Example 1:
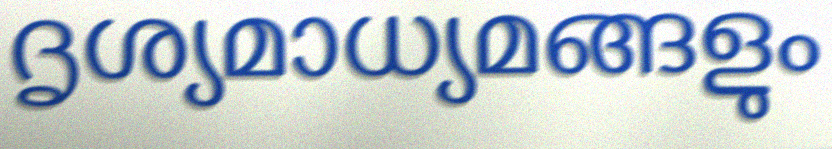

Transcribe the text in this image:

ദൃശ്യമാധ്യമങ്ങളും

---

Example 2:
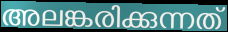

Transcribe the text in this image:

അലങ്കരിക്കുന്നത്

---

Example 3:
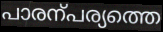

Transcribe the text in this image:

പാരന്പര്യത്തെ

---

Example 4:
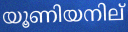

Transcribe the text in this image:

യൂണിയനില്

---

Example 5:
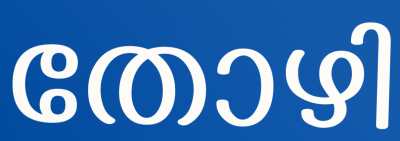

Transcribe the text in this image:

തോഴി